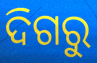
ଦିଗରୁ